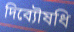
দিব্যৌষধি